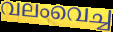
വലംവെച്ച